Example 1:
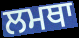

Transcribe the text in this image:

ਲਮਥਾ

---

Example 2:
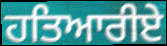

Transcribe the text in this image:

ਹਤਿਆਰੀਏ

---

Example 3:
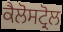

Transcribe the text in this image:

ਕੈਲੋਸਟ੍ਰੋਲ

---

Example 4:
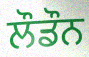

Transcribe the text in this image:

ਲੌਡੌਨ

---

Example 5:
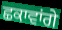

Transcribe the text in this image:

ਛਕਾਵਾਂਗੇ